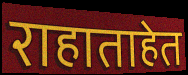
राहाताहेत